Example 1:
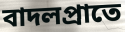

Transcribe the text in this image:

বাদলপ্রাতে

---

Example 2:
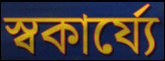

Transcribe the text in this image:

স্বকার্য্যে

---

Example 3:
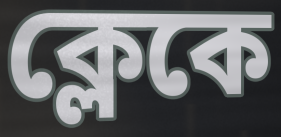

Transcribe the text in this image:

ক্লেকে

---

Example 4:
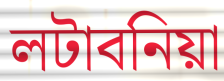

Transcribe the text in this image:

লটাবনিয়া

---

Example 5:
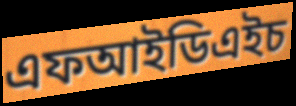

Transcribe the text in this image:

এফআইডিএইচ